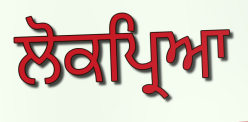
ਲੋਕਪ੍ਰਿਆ